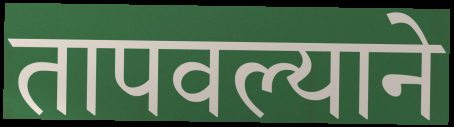
तापवल्याने